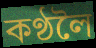
কণ্ঠলৈ